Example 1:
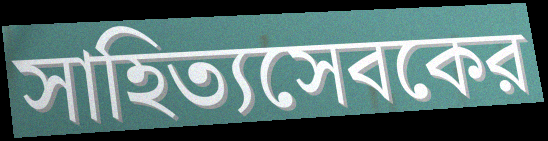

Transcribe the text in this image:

সাহিত্যসেবকের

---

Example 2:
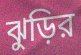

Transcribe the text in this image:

ঝুড়ির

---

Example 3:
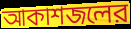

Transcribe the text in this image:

আকাশজলের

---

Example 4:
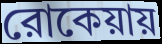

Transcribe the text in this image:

রোকেয়ায়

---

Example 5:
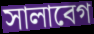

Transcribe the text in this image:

সালাবেগ